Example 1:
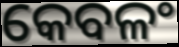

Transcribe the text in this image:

କେବଳଂ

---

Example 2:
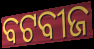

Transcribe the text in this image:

ବଟବୀଜ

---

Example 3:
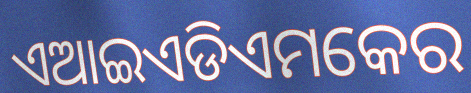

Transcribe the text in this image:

ଏଆଇଏଡିଏମକେର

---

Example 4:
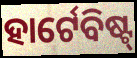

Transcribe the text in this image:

ହାର୍ଟେବିଷ୍ଟ୍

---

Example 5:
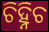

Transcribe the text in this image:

ଚିହ୍ନିଚ